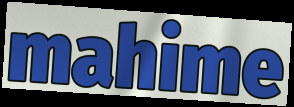
mahime